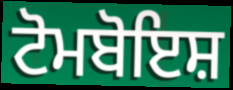
ਟੋਮਬੋਇਸ਼